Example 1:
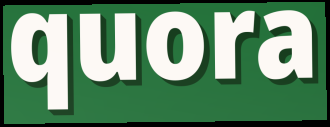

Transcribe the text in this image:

quora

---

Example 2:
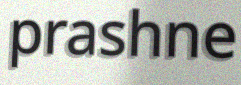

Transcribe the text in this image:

prashne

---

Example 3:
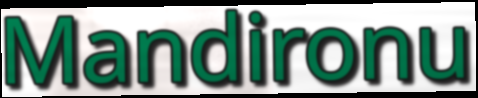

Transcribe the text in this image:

Mandironu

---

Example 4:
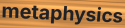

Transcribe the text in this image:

metaphysics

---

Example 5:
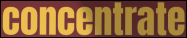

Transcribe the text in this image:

concentrate